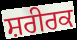
ਸ਼ਰੀਰਕ